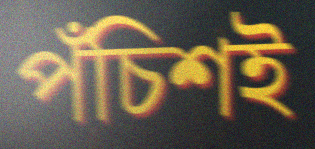
পঁচিশই